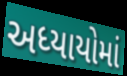
અધ્યાયોમાં